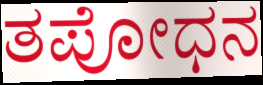
ತಪೋಧನ